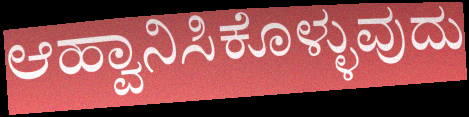
ಆಹ್ವಾನಿಸಿಕೊಳ್ಳುವುದು